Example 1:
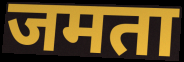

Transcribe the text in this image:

जमता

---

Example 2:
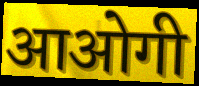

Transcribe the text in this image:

आओगी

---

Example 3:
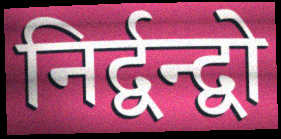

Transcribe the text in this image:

निर्द्वन्द्वो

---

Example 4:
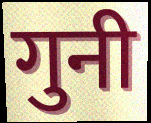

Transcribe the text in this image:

गुनी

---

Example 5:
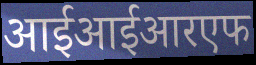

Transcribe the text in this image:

आईआईआरएफ